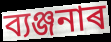
ব্যঞ্জনাৰ